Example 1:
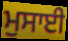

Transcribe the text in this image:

ਮੁਸਾਈ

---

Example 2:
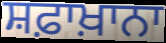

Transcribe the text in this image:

ਸ਼ਫ਼ਾਖ਼ਾਨਾ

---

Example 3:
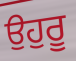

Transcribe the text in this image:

ਉਹੁਰੂ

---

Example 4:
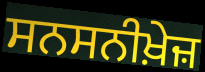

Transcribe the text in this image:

ਸਨਸਨੀਖ਼ੇਜ਼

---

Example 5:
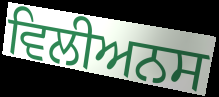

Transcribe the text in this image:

ਵਿਲੀਅਨਸ